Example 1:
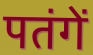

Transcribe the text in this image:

पतंगें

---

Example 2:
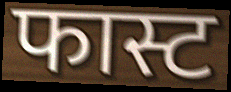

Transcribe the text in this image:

फास्ट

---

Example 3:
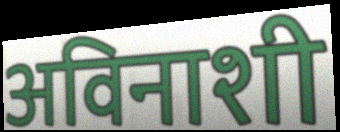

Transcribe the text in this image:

अविनाशी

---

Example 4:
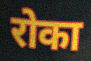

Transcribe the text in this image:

रोका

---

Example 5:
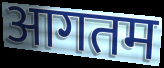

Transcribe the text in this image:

आगतम